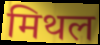
मिथल